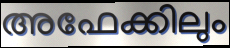
അഫേക്കിലും